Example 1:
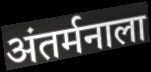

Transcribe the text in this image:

अंतर्मनाला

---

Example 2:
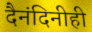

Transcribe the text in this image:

दैनंदिनीही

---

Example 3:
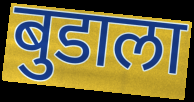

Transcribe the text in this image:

बुडाला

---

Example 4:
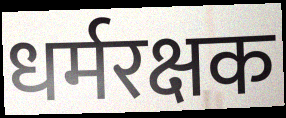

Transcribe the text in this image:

धर्मरक्षक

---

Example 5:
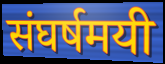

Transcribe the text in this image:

संघर्षमयी